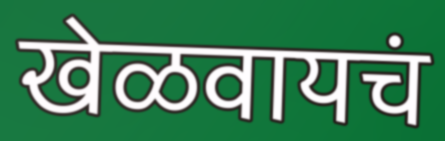
खेळवायचं